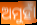
ଅମୁହାଁ